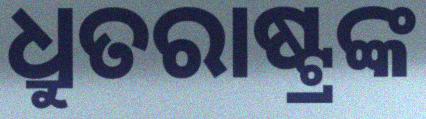
ଧ୍ରୁତରାଷ୍ଟ୍ରଙ୍କ